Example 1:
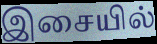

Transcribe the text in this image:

இசையில்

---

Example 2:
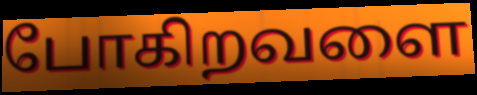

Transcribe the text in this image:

போகிறவளை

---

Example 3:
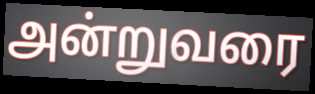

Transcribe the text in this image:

அன்றுவரை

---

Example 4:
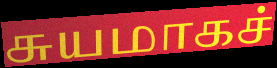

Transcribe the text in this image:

சுயமாகச்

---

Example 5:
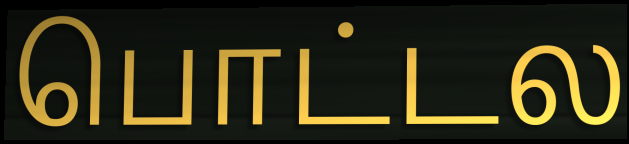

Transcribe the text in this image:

பொட்டல